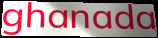
ghanada